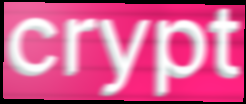
crypt